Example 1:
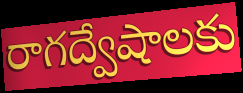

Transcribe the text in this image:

రాగద్వేషాలకు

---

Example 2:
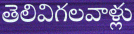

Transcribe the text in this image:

తెలివిగలవాళ్లు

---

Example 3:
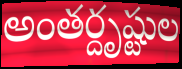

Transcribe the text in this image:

అంతర్దృష్టుల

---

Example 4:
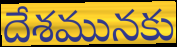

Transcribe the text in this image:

దేశమునకు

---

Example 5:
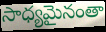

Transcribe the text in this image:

సాధ్యమైనంతా